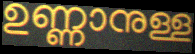
ഉണ്ണാനുള്ള